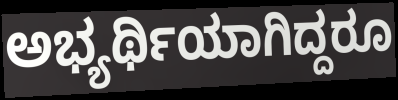
ಅಭ್ಯರ್ಥಿಯಾಗಿದ್ದರೂ